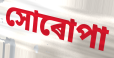
সোৰোপা